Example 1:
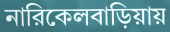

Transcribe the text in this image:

নারিকেলবাড়িয়ায়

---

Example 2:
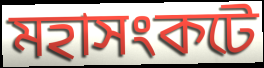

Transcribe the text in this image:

মহাসংকটে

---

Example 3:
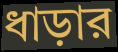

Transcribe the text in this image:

ধাড়ার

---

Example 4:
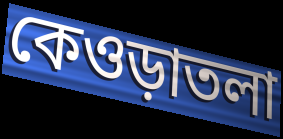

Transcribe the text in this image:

কেওড়াতলা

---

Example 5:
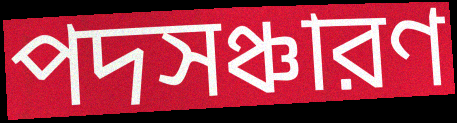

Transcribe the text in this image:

পদসঞ্চারণ